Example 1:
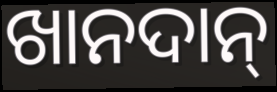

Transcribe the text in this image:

ଖାନଦାନ୍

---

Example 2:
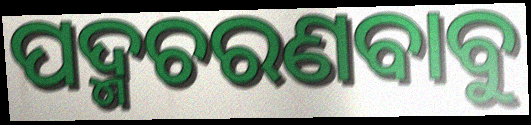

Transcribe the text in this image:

ପଦ୍ମଚରଣବାବୁ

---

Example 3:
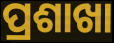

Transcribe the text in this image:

ପ୍ରଶାଖା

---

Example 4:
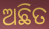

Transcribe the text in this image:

ଅଛିତ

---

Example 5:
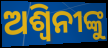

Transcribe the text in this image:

ଅଶ୍ୱିନୀଙ୍କୁ